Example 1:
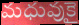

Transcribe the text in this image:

మధువుకై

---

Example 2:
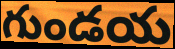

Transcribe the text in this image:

గుండయ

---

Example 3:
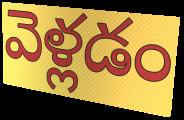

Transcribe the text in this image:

వెళ్లడం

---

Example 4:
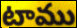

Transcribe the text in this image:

టాము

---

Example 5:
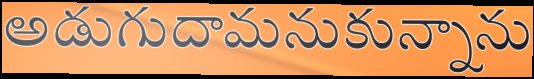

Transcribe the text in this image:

అడుగుదామనుకున్నాను